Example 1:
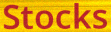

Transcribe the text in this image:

Stocks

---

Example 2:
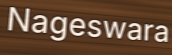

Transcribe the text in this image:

Nageswara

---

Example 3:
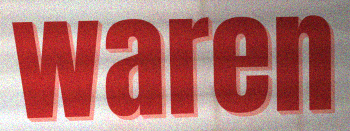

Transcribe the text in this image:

waren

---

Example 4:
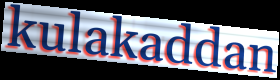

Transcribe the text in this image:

kulakaddan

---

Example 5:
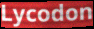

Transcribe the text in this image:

Lycodon